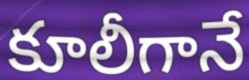
కూలీగానే